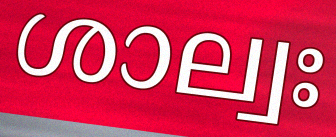
ശാല്വഃ